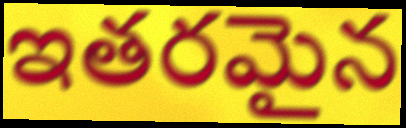
ఇతరమైన